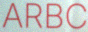
ARBC